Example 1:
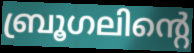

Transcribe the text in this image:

ബ്രൂഗലിന്റെ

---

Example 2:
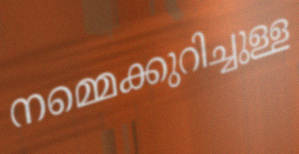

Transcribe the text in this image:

നമ്മെക്കുറിച്ചുള്ള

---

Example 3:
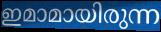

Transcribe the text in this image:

ഇമാമായിരുന്ന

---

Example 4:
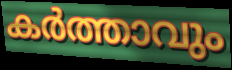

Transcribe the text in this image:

കർത്താവും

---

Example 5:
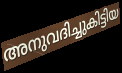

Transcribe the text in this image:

അനുവദിച്ചുകിട്ടിയ